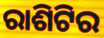
ରାଶିଟିର